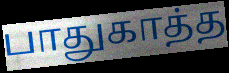
பாதுகாத்த